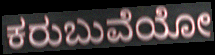
ಕರುಬುವೆಯೋ